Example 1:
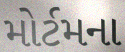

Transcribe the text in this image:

મોર્ટમના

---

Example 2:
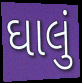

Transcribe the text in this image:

ઘાલું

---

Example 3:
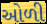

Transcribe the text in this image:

ઓળી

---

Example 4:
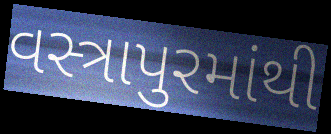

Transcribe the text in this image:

વસ્ત્રાપુરમાંથી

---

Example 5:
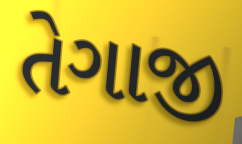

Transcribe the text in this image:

તેગાજી